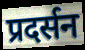
प्रदर्सन